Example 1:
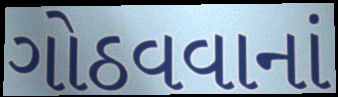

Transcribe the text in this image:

ગોઠવવાનાં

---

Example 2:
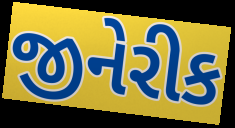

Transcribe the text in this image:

જીનેરીક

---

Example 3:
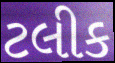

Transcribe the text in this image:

ટલીક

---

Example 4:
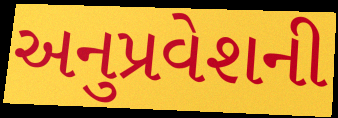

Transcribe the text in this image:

અનુપ્રવેશની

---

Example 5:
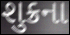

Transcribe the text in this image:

શુક્રના